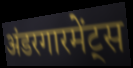
अंडरगारमेंट्स